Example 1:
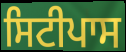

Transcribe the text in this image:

ਸਿਟੀਪਾਸ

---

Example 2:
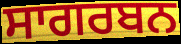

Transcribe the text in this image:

ਸਾਗਰਬਨ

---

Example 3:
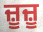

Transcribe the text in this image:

ਜ਼ੂਜ਼ੂ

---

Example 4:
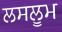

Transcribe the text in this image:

ਲਸਲੂਮ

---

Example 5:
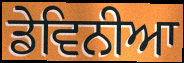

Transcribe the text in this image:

ਡੇਵਿਨੀਆ